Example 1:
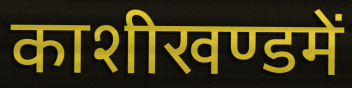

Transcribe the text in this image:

काशीखण्डमें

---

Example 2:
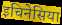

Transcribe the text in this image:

इचिनेसिया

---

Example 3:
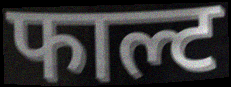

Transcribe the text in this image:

फाल्ट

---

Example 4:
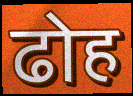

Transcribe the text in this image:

ढोह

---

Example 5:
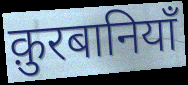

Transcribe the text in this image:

क़ुरबानियाँ